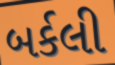
બર્કલી